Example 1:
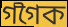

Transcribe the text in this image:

গগৈক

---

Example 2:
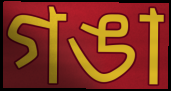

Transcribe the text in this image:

গঙা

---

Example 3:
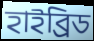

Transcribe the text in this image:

হাইব্ৰিড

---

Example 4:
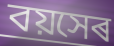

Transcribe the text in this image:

বয়সেৰ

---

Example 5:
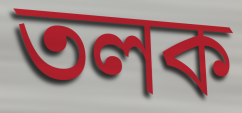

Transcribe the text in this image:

তলক